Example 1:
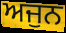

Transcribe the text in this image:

ਅਜੁਨ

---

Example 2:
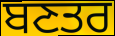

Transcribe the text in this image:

ਬਣਤਰ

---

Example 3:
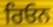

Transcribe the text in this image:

ਰਿਓਨ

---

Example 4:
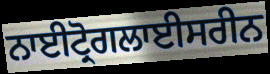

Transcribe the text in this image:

ਨਾਈਟ੍ਰੋਗਲਾਈਸਰੀਨ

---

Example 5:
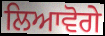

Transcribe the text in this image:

ਲਿਆਵੋਗੇ